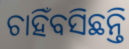
ଚାହିଁବସିଛନ୍ତି